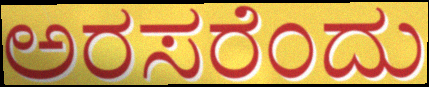
ಅರಸರೆಂದು